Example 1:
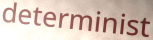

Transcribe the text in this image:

determinist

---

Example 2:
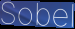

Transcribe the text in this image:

Sobel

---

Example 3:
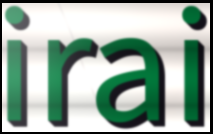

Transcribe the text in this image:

irai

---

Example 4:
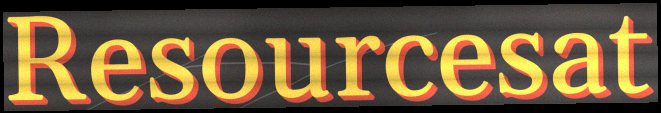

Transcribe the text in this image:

Resourcesat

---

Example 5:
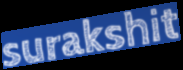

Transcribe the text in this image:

surakshit